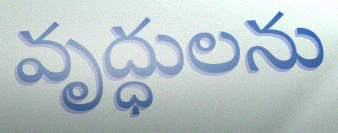
వృద్ధులను